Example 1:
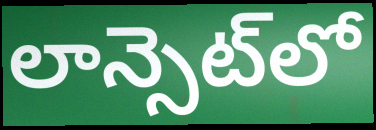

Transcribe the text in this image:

లాన్సెట్‌లో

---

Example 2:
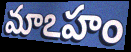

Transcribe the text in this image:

మాఽహం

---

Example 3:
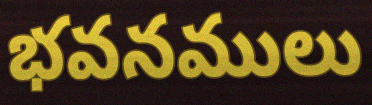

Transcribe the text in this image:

భవనములు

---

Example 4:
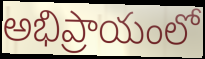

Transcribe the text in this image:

అభిప్రాయంలో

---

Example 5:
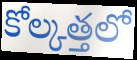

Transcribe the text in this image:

కోల్కత్తలో